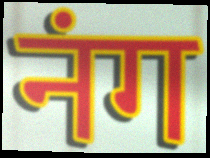
नंग